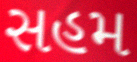
સહમ